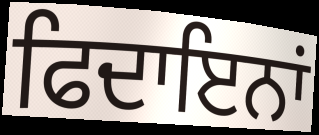
ਫਿਦਾਇਨਾਂ